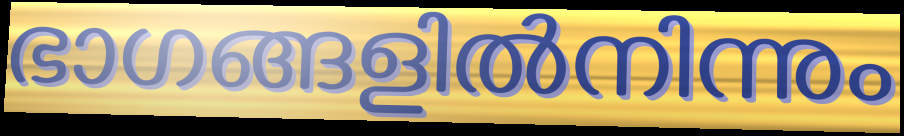
ഭാഗങ്ങളിൽനിന്നും